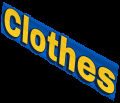
Clothes